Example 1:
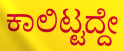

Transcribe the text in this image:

ಕಾಲಿಟ್ಟದ್ದೇ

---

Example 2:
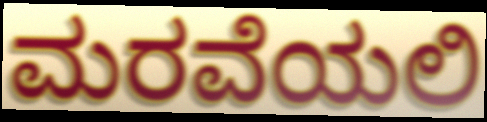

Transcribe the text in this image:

ಮರವೆಯಲಿ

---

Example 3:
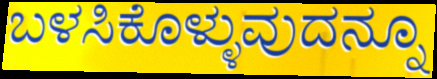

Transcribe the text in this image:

ಬಳಸಿಕೊಳ್ಳುವುದನ್ನೂ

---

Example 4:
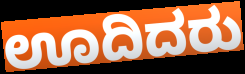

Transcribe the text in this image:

ಊದಿದರು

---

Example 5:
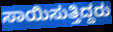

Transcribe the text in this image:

ಸಾಯಿಸುತ್ತಿದ್ದರು